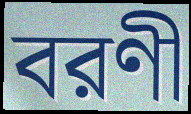
বরণী